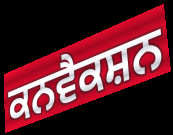
ਕਨਵੈਕਸ਼ਨ